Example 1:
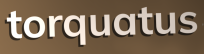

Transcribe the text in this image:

torquatus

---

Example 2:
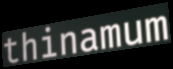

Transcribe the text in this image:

thinamum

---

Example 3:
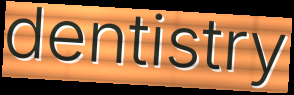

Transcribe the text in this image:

dentistry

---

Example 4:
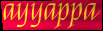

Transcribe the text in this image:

ayyappa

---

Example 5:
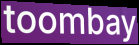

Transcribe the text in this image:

toombay